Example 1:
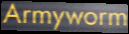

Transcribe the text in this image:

Armyworm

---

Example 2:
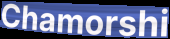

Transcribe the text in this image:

Chamorshi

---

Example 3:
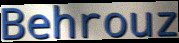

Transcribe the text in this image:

Behrouz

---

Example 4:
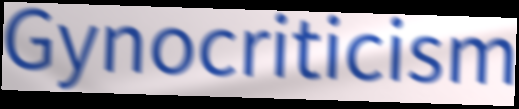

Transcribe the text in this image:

Gynocriticism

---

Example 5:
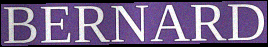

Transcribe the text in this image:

BERNARD